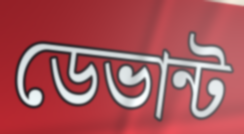
ডেভান্ট